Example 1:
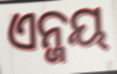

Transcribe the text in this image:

ଏନ୍ଜୟ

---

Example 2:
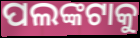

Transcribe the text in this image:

ପଲଙ୍କଟାକୁ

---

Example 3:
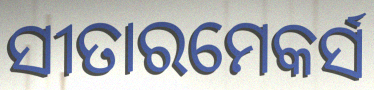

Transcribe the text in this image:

ସୀତାରମେକର୍ସ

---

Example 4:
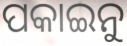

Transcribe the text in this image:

ପକାଇନୁ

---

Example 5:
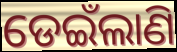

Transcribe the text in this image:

ଡେଇଁଲାଣି